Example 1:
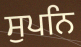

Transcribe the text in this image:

ਸੁਪਨਿ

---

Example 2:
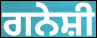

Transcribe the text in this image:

ਗਨੇਸ਼ੀ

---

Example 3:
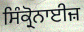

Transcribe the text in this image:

ਸਿੰਕ੍ਰੋਨਾਈਜ਼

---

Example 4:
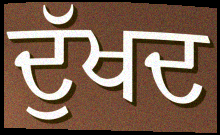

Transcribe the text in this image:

ਦੁੱਖਦ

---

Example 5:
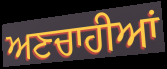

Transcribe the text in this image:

ਅਣਚਾਹੀਆਂ